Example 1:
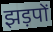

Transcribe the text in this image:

झड़पों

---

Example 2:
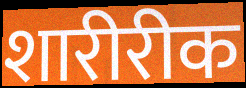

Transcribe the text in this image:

शारीरीक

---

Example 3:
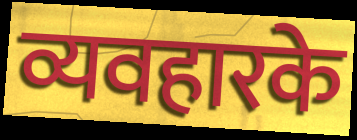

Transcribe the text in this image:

व्यवहारके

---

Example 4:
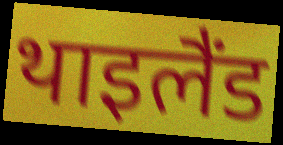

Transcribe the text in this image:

थाइलैंड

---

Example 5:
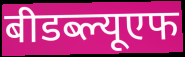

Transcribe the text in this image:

बीडब्ल्यूएफ